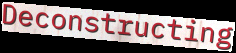
Deconstructing